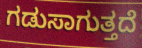
ಗಡುಸಾಗುತ್ತದೆ